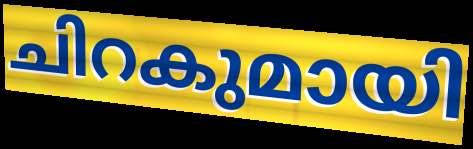
ചിറകുമായി